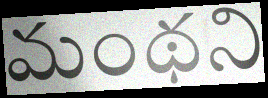
మంథని